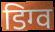
डिग्व